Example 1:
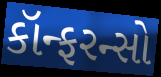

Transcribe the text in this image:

કૉન્ફરન્સો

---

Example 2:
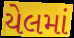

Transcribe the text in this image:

યેલમાં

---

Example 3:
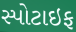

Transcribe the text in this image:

સ્પોટાઇફ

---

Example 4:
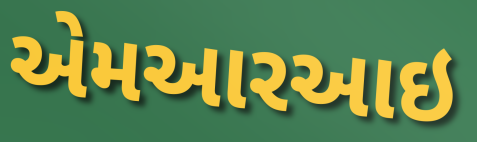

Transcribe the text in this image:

એમઆરઆઇ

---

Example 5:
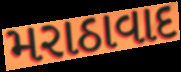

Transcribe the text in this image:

મરાઠાવાદ